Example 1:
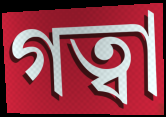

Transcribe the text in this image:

গত্বা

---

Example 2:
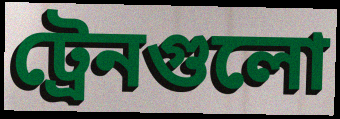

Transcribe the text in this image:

ট্রেনগুলো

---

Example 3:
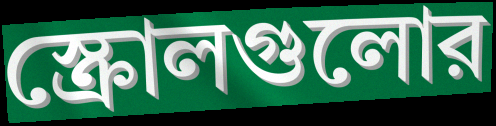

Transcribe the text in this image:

স্ক্রোলগুলোর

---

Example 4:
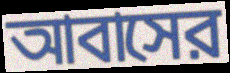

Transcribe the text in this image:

আবাসের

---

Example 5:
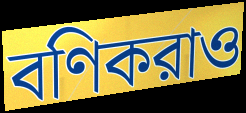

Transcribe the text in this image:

বণিকরাও